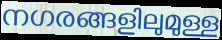
നഗരങ്ങളിലുമുള്ള